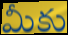
మీకు